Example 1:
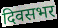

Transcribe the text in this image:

दिवसभर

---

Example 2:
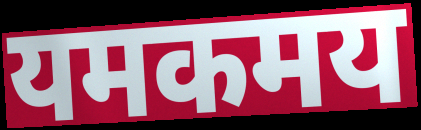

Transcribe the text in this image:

यमकमय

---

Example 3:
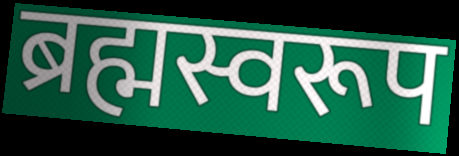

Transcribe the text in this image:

ब्रह्मस्वरूप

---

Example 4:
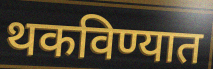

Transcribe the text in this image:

थकविण्यात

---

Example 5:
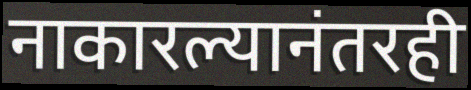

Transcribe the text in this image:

नाकारल्यानंतरही